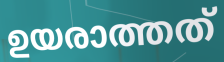
ഉയരാത്തത്